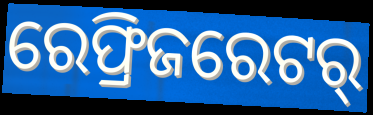
ରେଫ୍ରିଜରେଟର୍